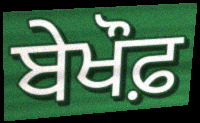
ਬੇਖੌਫ਼